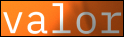
valor